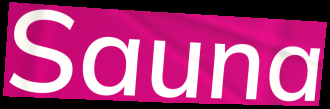
Sauna